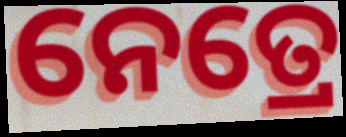
ନେତ୍ରେ